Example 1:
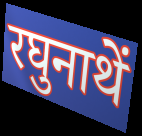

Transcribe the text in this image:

रघुनाथें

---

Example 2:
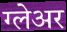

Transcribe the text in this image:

ग्लेअर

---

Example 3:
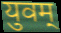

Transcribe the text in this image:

युवम्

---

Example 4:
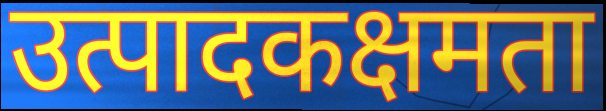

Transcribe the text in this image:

उत्पादकक्षमता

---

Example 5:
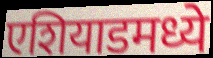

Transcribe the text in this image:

एशियाडमध्ये